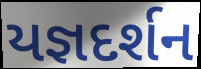
યજ્ઞદર્શન